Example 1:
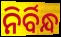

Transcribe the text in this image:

ନିର୍ବିନ୍ଧ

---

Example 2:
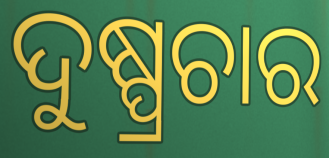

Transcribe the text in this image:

ଦୁଷ୍ପ୍ରଚାର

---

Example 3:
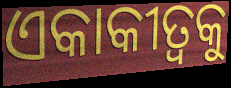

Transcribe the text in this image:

ଏକାକୀତ୍ଵକୁ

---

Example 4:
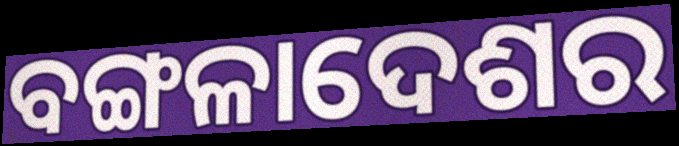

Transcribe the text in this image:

ବଙ୍ଗଳାଦେଶର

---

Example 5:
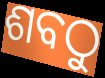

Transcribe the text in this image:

ଶବଠୁ